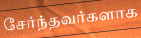
சேர்ந்தவர்களாக